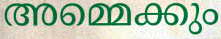
അമ്മെക്കും